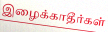
இழைக்காதீர்கள்